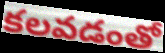
కలవడంతో